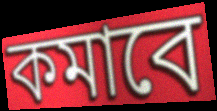
কমাবে